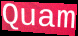
Quam